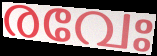
രവേഃ